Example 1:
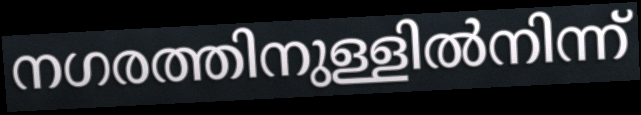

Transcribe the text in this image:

നഗരത്തിനുള്ളിൽനിന്ന്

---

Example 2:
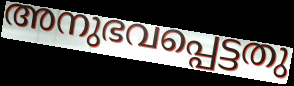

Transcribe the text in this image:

അനുഭവപ്പെട്ടതു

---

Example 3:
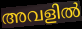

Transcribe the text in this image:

അവളിൽ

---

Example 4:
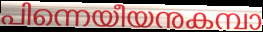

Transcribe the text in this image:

പിന്നെയീയനുകമ്പാ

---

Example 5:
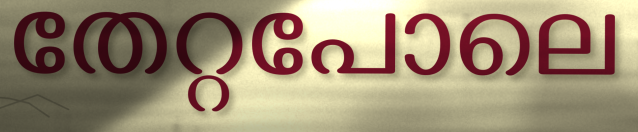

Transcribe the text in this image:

തേറ്റപോലെ